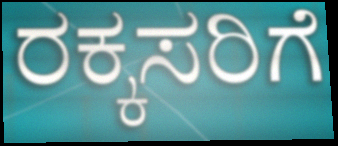
ರಕ್ಕಸರಿಗೆ